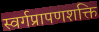
स्वर्गप्रापणशक्ति